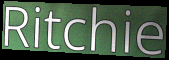
Ritchie